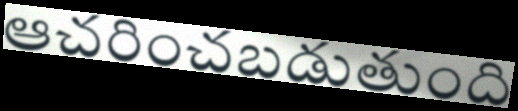
ఆచరించబడుతుంది